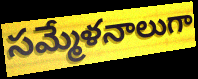
సమ్మేళనాలుగా